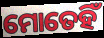
ମୋତେହିଁ